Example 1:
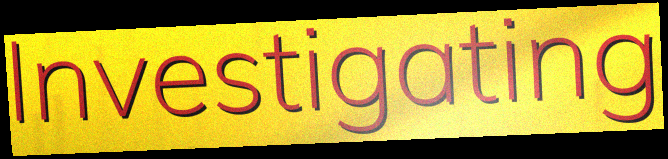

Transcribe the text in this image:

Investigating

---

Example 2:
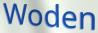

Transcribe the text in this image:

Woden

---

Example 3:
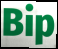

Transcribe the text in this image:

Bip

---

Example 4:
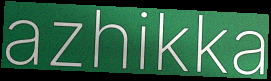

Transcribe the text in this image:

azhikka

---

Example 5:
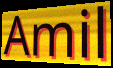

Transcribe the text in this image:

Amil